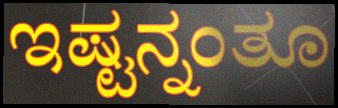
ಇಷ್ಟನ್ನಂತೂ